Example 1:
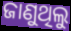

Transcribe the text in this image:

ଜାଣୁଥିଲୁ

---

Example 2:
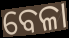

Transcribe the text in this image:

ବେଳା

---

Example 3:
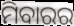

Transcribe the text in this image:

ମିବାରର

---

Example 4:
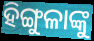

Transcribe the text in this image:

ହିଙ୍ଗୁଳାଙ୍କୁ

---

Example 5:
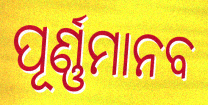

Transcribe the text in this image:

ପୂର୍ଣ୍ଣମାନବ